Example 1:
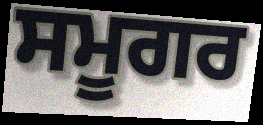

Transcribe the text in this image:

ਸਮੂਗਰ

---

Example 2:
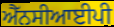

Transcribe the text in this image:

ਐੱਨਸੀਆਈਪੀ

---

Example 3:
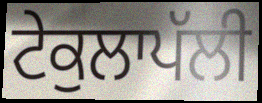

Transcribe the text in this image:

ਟੇਕੁਲਾਪੱਲੀ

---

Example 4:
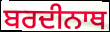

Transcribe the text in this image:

ਬਰਦੀਨਾਥ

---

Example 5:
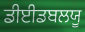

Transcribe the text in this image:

ਡੀਈਡਬਲਯੂ